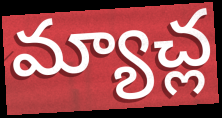
మ్యాచ్ల